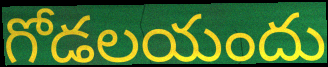
గోడలయందు